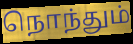
நொந்தும்